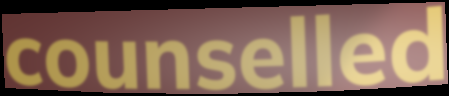
counselled